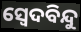
ସ୍ୱେଦବିନ୍ଦୁ